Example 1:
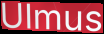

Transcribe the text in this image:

Ulmus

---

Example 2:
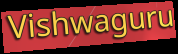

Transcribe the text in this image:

Vishwaguru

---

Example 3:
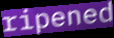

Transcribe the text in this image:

ripened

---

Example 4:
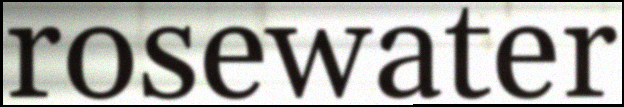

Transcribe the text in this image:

rosewater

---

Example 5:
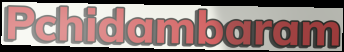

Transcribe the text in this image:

Pchidambaram